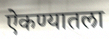
ऐकण्यातला